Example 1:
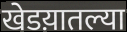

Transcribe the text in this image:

खेडय़ातल्या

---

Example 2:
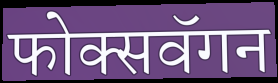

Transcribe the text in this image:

फोक्सवॅगन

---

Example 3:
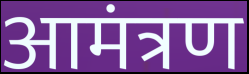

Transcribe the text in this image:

आमंत्रण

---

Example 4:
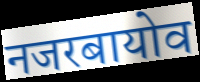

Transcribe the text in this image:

नजरबायोव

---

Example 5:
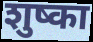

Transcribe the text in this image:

शुष्का